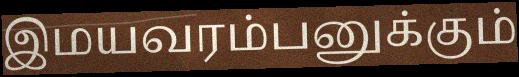
இமயவரம்பனுக்கும்